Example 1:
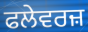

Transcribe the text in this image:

ਫਲੇਵਰਜ਼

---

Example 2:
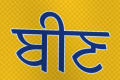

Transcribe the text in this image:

ਬੀਣ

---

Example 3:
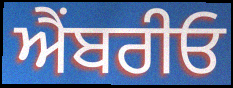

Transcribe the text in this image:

ਐਂਬਰੀਓ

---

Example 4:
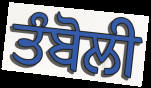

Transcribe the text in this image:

ਤੰਬੋਲੀ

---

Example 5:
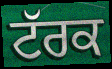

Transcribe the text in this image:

ਟੱਰਕ